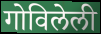
गोविलेली